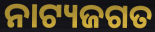
ନାଟ୍ୟଜଗତ